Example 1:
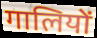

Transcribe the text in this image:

गालियों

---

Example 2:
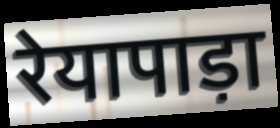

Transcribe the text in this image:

रेयापाड़ा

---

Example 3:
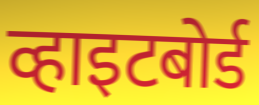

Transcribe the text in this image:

व्हाइटबोर्ड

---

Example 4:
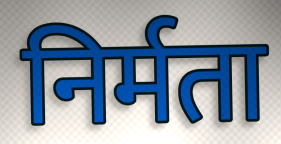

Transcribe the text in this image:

निर्मता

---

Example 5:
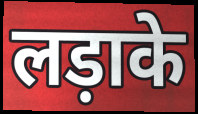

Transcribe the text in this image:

लड़ाके